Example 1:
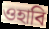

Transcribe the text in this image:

ওহাবি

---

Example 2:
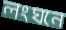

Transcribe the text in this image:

লংঘনে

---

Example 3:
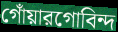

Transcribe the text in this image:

গোঁয়ারগোবিন্দ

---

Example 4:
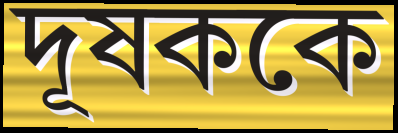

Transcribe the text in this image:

দূষককে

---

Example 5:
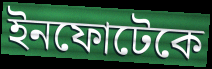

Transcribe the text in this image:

ইনফোটেকে